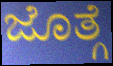
ಜೊತ್ಗೆ